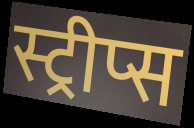
स्ट्रीप्स